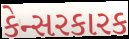
કેન્સરકારક